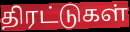
திரட்டுகள்